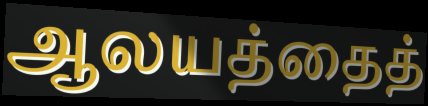
ஆலயத்தைத்